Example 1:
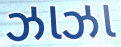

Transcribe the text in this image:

ઝાઝા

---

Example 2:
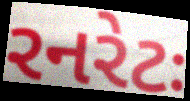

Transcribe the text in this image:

રનરેટઃ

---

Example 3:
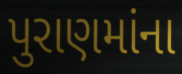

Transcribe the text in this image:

પુરાણમાંના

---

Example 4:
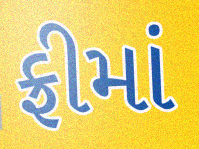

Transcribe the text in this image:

ફ્રીમાં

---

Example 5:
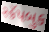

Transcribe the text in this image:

સ્ક્રૅપબુક